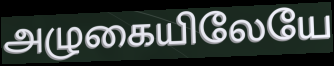
அழுகையிலேயே